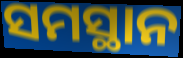
ସମସ୍ଥାନ